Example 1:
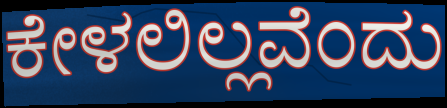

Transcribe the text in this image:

ಕೇಳಲಿಲ್ಲವೆಂದು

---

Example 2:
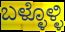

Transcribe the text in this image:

ಬಳ್ಳೊಳ್ಳಿ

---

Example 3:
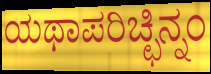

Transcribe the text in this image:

ಯಥಾಪರಿಚ್ಛಿನ್ನಂ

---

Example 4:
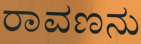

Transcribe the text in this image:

ರಾವಣನು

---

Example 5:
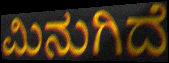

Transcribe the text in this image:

ಮಿನುಗಿದೆ